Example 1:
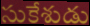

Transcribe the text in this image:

సుకేశుడు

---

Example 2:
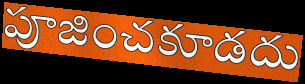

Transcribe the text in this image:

పూజించకూడదు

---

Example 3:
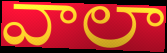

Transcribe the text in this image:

వాలా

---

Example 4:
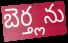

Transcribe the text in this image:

బెర్త్లను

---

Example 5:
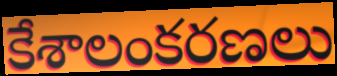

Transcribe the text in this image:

కేశాలంకరణలు